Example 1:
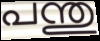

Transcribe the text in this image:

പന്തു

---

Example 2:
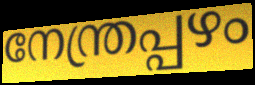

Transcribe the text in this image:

നേന്ത്രപ്പഴം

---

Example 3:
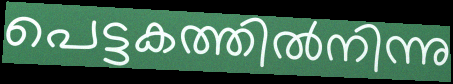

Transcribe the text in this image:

പെട്ടകത്തിൽനിന്നു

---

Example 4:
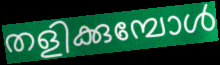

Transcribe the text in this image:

തളിക്കുമ്പോൾ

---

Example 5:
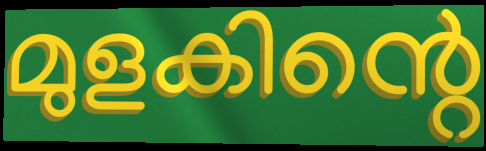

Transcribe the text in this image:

മുളകിന്റെ